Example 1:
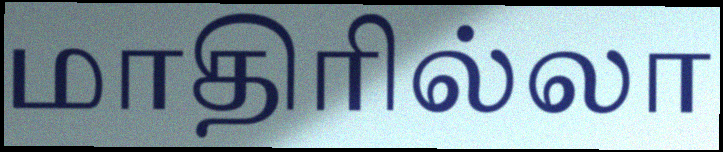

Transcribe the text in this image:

மாதிரில்லா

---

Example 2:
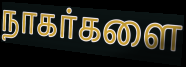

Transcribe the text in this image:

நாகர்களை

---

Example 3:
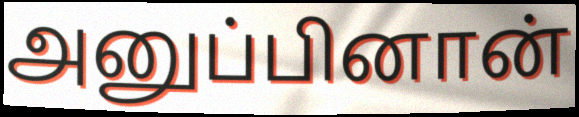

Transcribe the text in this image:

அனுப்பினான்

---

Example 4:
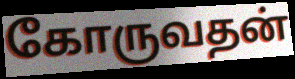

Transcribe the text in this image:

கோருவதன்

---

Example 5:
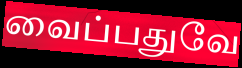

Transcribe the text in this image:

வைப்பதுவே